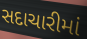
સદાચારીમાં